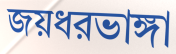
জয়ধরভাঙ্গা